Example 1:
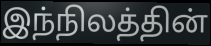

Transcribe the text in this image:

இந்நிலத்தின்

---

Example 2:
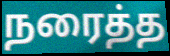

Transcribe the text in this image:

நரைத்த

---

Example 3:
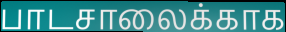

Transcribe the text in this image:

பாடசாலைக்காக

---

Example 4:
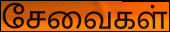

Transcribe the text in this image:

சேவைகள்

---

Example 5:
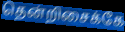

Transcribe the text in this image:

தென்றிசைக்கே